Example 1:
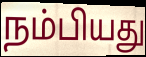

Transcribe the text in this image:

நம்பியது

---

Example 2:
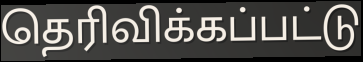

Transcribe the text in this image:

தெரிவிக்கப்பட்டு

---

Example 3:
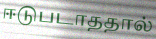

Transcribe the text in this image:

ஈடுபடாததால்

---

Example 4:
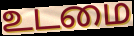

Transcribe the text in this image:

உடமை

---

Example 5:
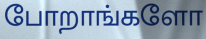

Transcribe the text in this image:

போறாங்களோ